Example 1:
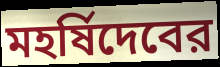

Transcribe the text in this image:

মহর্ষিদেবের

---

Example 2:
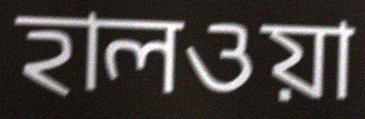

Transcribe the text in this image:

হালওয়া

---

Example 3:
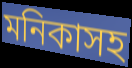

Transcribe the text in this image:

মনিকাসহ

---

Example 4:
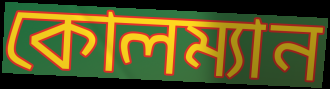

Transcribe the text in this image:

কোলম্যান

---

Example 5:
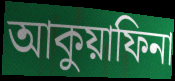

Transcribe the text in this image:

আকুয়াফিনা